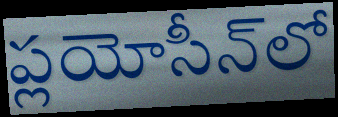
ప్లయోసీన్‌లో